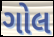
ગોલ